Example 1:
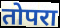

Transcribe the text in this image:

तोपरा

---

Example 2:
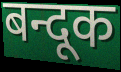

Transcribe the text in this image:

बन्दूक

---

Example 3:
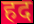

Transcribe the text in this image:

हद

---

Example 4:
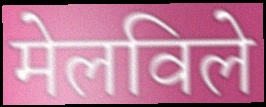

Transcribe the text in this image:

मेलविले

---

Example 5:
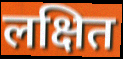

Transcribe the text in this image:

लक्षित